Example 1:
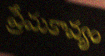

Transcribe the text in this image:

ప్రేమకావ్యం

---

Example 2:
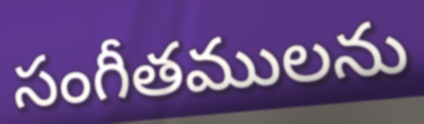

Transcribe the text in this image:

సంగీతములను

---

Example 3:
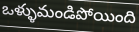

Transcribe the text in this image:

ఒళ్ళుమండిపోయింది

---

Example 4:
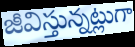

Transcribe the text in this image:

జీవిస్తున్నట్లుగా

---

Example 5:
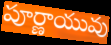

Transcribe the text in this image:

పూర్ణాయువు